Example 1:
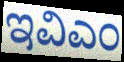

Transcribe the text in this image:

ಇವಿಎಂ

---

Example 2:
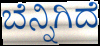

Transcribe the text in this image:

ಬೆನ್ನಿಗಿದೆ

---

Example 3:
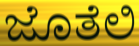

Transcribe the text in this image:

ಜೊತೆಲಿ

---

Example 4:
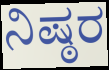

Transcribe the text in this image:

ನಿಷ್ಠರ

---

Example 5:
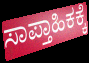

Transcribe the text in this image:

ಸಾಪ್ತಾಹಿಕಕ್ಕೆ